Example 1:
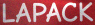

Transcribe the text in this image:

LAPACK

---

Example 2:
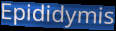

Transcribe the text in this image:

Epididymis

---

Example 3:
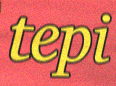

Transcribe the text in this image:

tepi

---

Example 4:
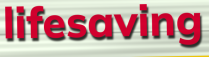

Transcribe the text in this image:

lifesaving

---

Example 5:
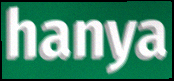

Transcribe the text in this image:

hanya